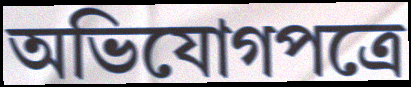
অভিযোগপত্রে